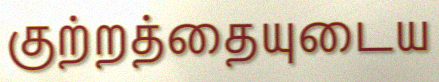
குற்றத்தையுடைய